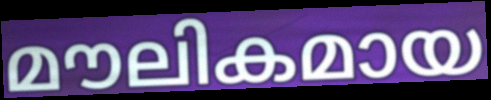
മൗലികമായ